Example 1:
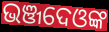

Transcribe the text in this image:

ଭଞ୍ଜଦେଓଙ୍କ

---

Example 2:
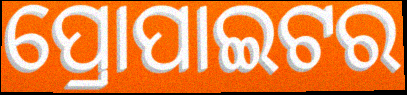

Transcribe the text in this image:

ପ୍ରୋପାଇଟର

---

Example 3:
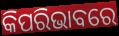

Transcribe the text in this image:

କିପରିଭାବରେ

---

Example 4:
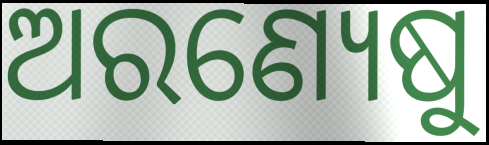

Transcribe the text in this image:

ଅରଣ୍ୟେଷୁ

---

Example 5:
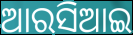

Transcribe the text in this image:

ଆରସିଆଇ